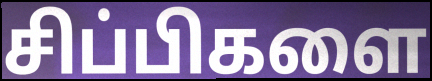
சிப்பிகளை